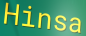
Hinsa